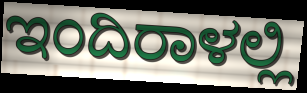
ಇಂದಿರಾಳಲ್ಲಿ